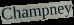
Champney